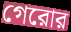
গেরোর